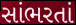
સાંભરતાં